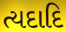
ત્યદાદિ